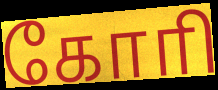
கோரி